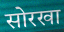
सोरखा